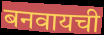
बनवायची